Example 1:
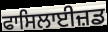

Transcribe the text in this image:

ਫਾਸਿਲਾਈਜ਼ਡ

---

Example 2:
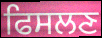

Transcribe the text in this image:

ਫਿਸਲਣ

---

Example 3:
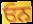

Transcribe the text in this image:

ਓਨ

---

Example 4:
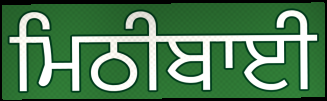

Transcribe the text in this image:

ਮਿਠੀਬਾਈ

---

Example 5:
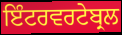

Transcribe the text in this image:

ਇੰਟਰਵਰਟੇਬ੍ਰਲ